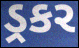
ડ્રકર